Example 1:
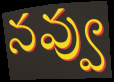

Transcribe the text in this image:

నవ్వు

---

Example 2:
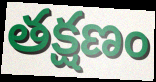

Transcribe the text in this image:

తక్షణం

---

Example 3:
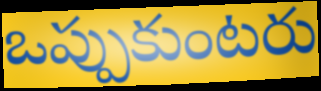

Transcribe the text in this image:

ఒప్పుకుంటరు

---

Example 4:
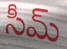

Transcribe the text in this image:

సీమ్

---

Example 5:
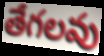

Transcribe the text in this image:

తేగలవు